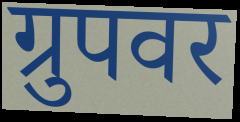
ग्रुपवर